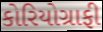
કોરિયોગ્રાફી